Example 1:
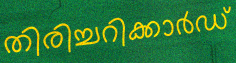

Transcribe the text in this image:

തിരിച്ചറിക്കാർഡ്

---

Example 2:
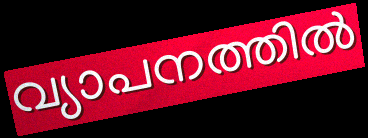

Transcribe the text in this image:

വ്യാപനത്തിൽ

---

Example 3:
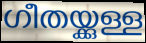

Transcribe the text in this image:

ഗീതയ്ക്കുള്ള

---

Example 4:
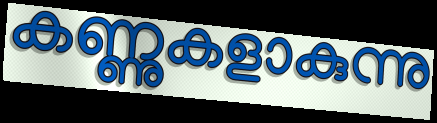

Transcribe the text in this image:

കണ്ണുകളാകുന്നു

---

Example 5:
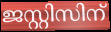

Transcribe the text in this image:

ജസ്റ്റിസിന്